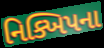
નિક્ખિપના